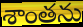
శాంతను